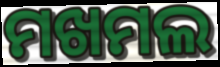
ମଖମଲ